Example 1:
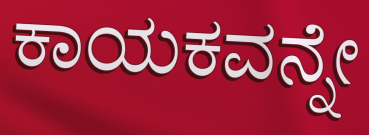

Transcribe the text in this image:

ಕಾಯಕವನ್ನೇ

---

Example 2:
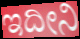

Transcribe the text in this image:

ಇದೀನಿ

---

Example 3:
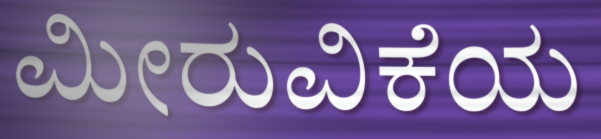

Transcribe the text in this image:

ಮೀರುವಿಕೆಯ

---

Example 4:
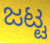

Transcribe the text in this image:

ಜಟ್ಟ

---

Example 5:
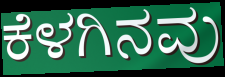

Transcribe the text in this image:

ಕೆಳಗಿನವು